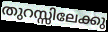
തുറസ്സിലേക്കു